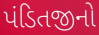
પંડિતજીનો